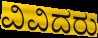
ವಿವಿದರು